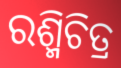
ରଶ୍ମିଚିତ୍ର